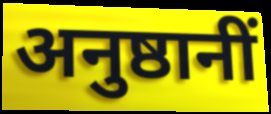
अनुष्ठानीं